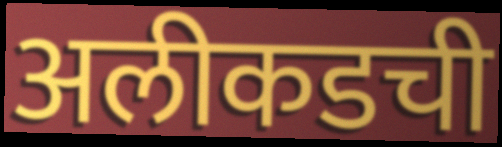
अलीकडची